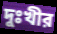
দুঃখীর